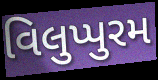
વિલુપ્પુરમ